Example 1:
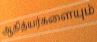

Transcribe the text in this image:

ஆதித்யர்களையும்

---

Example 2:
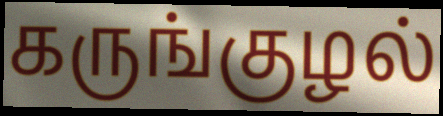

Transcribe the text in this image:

கருங்குழல்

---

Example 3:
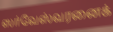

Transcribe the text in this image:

ஸர்வேஸ்வரனைக்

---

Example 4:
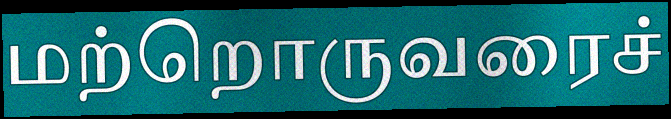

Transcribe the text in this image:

மற்றொருவரைச்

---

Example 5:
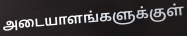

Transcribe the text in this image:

அடையாளங்களுக்குள்